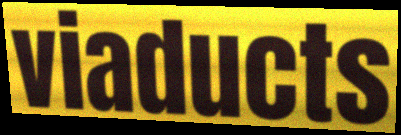
viaducts